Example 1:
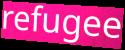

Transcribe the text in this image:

refugee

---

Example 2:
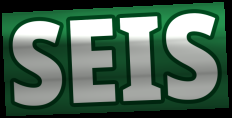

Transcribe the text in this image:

SEIS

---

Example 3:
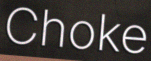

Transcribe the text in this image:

Choke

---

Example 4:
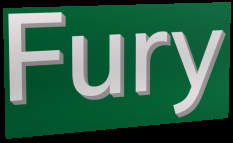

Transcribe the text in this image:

Fury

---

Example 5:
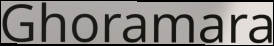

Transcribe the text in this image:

Ghoramara